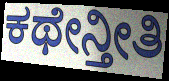
ಕಥೇನ್ತೀತಿ